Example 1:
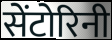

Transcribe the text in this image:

सेंटोरिनी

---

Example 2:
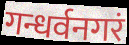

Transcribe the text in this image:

गन्धर्वनगरं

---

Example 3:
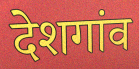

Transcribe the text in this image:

देशगांव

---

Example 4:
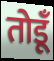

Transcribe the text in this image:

तोडूँ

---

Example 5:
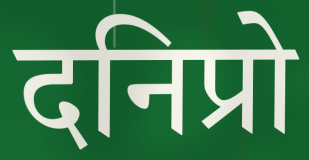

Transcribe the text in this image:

दनिप्रो